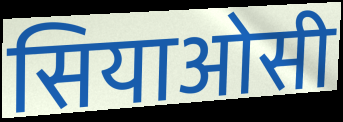
सियाओसी